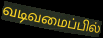
வடிவமைப்பில்